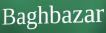
Baghbazar